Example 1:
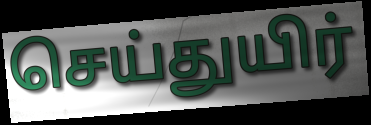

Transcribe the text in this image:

செய்துயிர்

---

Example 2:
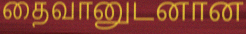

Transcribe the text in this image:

தைவானுடனான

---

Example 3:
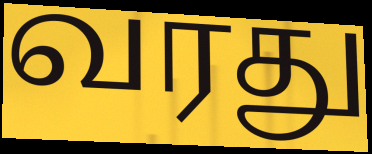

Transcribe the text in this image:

வரது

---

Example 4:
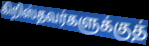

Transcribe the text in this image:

கிறிஸ்தவர்களுக்குத்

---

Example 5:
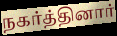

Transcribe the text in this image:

நகர்த்தினார்